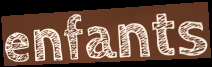
enfants